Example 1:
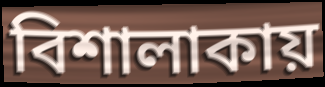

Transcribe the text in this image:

বিশালাকায়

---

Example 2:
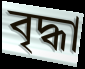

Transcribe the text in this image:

বৃদ্ধা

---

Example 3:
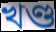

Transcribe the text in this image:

খণ্ড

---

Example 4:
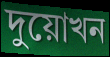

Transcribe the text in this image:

দুয়োখন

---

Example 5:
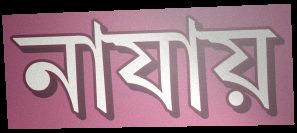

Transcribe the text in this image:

নাযায়